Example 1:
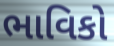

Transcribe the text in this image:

ભાવિકો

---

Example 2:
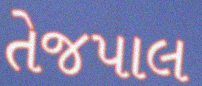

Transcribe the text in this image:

તેજપાલ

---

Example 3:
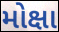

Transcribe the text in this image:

મોક્ષા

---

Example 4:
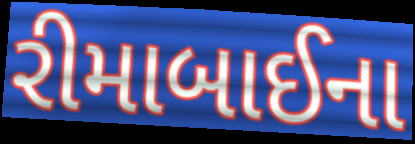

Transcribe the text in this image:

રીમાબાઈના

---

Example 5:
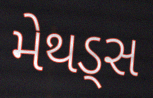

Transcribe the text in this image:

મેથડ્સ